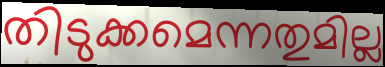
തിടുക്കമെന്നതുമില്ല